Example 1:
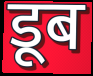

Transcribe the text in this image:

डूब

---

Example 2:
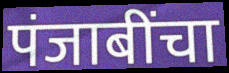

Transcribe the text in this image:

पंजाबींचा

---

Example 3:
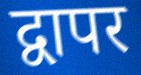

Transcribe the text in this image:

द्वापर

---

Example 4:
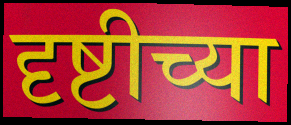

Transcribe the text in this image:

दृष्टीच्या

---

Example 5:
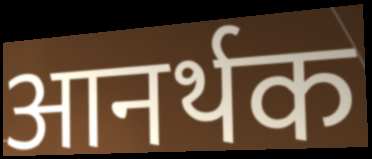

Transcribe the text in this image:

आनर्थक